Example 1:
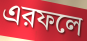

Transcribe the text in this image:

এরফলে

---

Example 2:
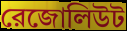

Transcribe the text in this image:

রেজোলিউট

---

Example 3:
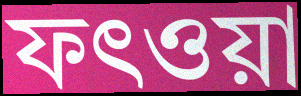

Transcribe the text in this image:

ফৎওয়া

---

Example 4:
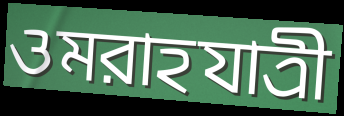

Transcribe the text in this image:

ওমরাহযাত্রী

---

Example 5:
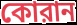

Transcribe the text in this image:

কোরান